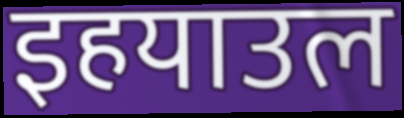
इहयाउल